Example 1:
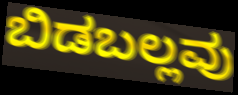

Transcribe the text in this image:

ಬಿಡಬಲ್ಲವು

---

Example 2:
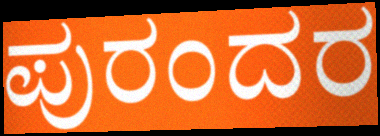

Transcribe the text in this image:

ಪುರಂದರ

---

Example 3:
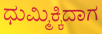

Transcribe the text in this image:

ಧುಮ್ಮಿಕ್ಕಿದಾಗ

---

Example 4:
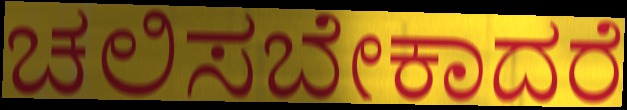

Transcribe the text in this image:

ಚಲಿಸಬೇಕಾದರೆ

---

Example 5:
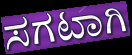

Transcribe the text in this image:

ಸಗಟಾಗಿ